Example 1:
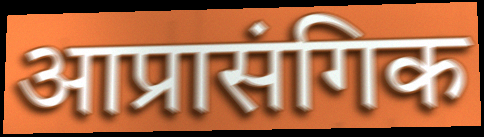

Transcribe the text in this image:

आप्रासंगिक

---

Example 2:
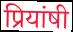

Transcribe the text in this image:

प्रियांषी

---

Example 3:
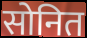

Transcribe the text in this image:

सोनित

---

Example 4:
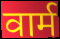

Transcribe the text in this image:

वार्म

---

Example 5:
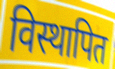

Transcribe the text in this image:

विस्थापित